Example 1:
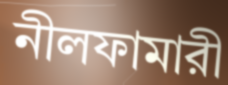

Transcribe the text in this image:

নীলফামারী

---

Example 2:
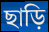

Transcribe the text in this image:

ছাড়ি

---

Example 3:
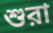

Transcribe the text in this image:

শুরা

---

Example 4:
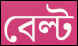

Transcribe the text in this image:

বেল্ট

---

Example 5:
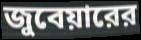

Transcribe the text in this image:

জুবেয়ারের